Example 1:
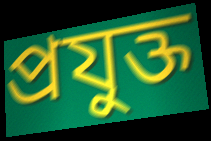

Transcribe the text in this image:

প্রযুক্ত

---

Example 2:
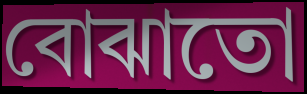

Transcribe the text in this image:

বোঝাতো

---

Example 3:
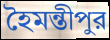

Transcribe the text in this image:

হৈমন্তীপুর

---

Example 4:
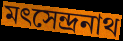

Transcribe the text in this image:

মৎসেন্দ্রনাথ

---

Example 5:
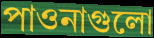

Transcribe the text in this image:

পাওনাগুলো